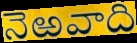
నెఱవాది